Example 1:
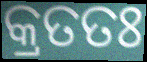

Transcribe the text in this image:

କ୍ରତତଃ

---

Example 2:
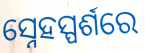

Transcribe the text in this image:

ସ୍ନେହସ୍ପର୍ଶରେ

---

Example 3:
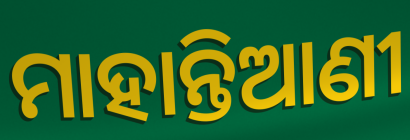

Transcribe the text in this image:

ମାହାନ୍ତିଆଣୀ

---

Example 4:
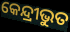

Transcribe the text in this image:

କେନ୍ଦ୍ରୀଭୁତ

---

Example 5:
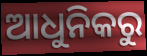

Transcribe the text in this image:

ଆଧୁନିକରୁ